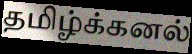
தமிழ்க்கனல்